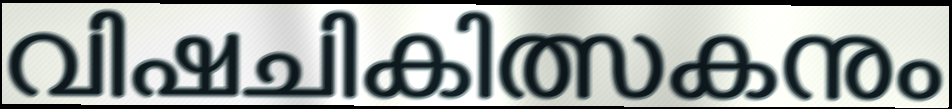
വിഷചികിത്സകനും